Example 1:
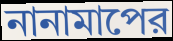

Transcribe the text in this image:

নানামাপের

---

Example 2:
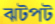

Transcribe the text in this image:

ঝটপট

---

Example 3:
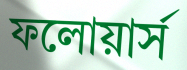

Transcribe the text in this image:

ফলোয়ার্স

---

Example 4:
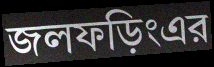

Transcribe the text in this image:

জলফড়িংএর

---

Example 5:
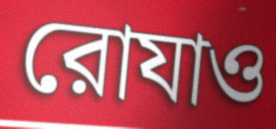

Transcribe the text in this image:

রোযাও